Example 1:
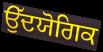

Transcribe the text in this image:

ਉੱਦਯੋਗਿਕ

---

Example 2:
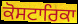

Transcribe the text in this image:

ਕੋਸਟਾਰਿਕਾ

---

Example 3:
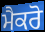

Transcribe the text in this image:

ਮੈਕਰੋ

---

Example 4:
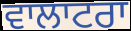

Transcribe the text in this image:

ਵਾਲਾਟਰਾ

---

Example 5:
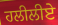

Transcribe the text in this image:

ਹਲੀਲੀਏ